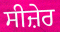
ਸੀਜ਼ੇਰ